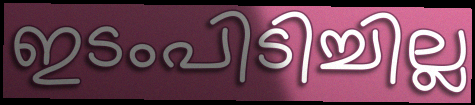
ഇടംപിടിച്ചില്ല